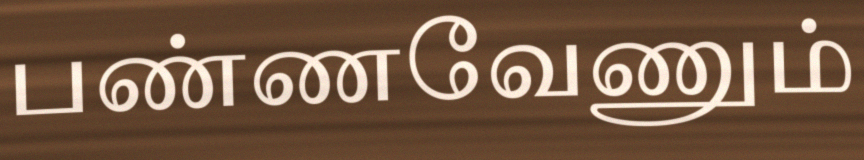
பண்ணவேணும்